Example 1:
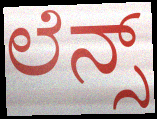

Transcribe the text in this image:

ಲೆನ್ಸ್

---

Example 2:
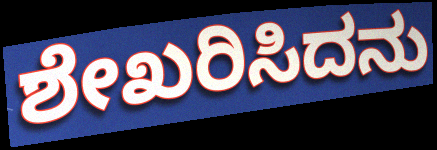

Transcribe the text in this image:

ಶೇಖರಿಸಿದನು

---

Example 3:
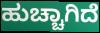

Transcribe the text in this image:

ಹುಚ್ಚಾಗಿದೆ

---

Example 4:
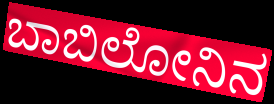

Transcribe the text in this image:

ಬಾಬಿಲೋನಿನ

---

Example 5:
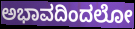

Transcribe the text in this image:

ಅಭಾವದಿಂದಲೋ